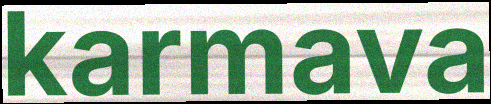
karmava